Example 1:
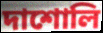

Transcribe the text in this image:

দাশোলি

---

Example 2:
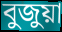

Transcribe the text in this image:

বুজুয়া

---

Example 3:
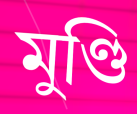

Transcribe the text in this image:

মুণ্ডি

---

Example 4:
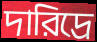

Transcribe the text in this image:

দারিদ্রে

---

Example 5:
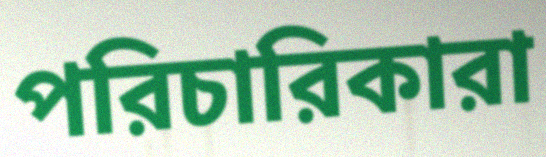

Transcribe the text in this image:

পরিচারিকারা